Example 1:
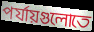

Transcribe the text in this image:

পর্যায়গুলোতে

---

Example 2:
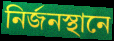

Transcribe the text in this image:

নির্জনস্থানে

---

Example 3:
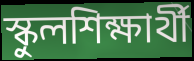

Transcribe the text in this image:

স্কুলশিক্ষার্থী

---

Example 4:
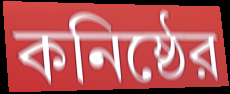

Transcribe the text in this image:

কনিষ্ঠের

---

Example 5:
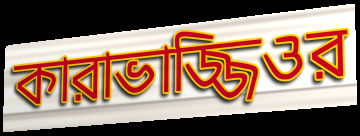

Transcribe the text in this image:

কারাভাজ্জিওর